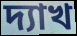
দ্যাখ